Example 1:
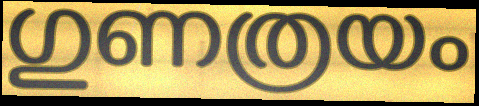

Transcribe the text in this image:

ഗുണത്രയം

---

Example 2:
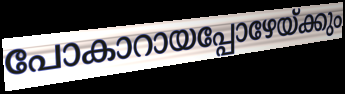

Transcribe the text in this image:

പോകാറായപ്പോഴേയ്ക്കും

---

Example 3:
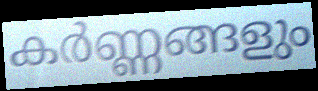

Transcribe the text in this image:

കർണ്ണങ്ങളും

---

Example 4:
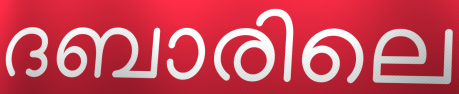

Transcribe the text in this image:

ദബാരിലെ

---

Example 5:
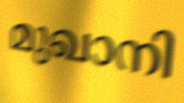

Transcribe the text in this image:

മുഖാനി